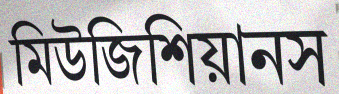
মিউজিশিয়ানস